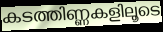
കടത്തിണ്ണകളിലൂടെ